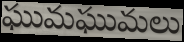
ఘుమఘుమలు